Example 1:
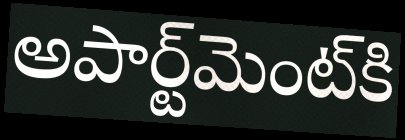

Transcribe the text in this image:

అపార్ట్‌మెంట్‌కి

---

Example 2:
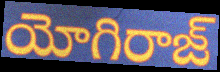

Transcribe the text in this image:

యోగిరాజ్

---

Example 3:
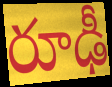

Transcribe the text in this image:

రూఢీ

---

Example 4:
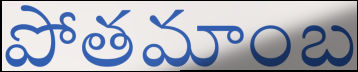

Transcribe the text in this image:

పోతమాంబ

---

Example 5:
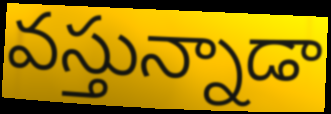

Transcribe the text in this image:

వస్తున్నాడా